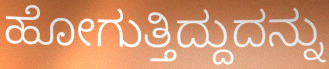
ಹೋಗುತ್ತಿದ್ದುದನ್ನು